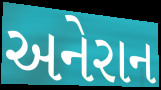
અનેરાન